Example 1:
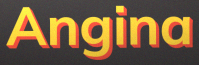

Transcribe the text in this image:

Angina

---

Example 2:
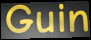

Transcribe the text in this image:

Guin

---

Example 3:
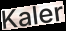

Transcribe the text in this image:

Kaler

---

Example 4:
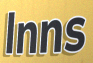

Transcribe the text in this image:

Inns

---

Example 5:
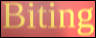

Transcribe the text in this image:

Biting